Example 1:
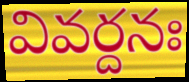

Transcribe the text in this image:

వివర్దనః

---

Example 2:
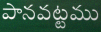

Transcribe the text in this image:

పానవట్టము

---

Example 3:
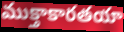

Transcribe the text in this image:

ముక్తాకారతయా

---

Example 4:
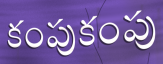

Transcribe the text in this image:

కంపుకంపు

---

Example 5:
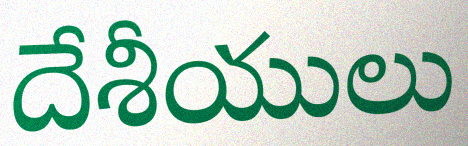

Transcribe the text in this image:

దేశీయులు